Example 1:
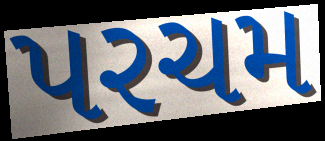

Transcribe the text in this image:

પરચમ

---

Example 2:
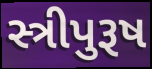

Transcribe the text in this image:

સ્ત્રીપુરૂષ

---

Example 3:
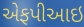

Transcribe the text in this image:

એફપીઆઇ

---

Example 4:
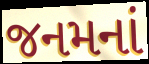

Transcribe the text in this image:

જનમનાં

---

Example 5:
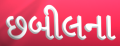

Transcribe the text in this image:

છબીલના